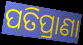
ପତିପ୍ରାଣା